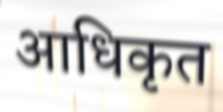
आधिकृत